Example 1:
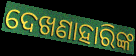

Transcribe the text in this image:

ଦେଖଣାହାରିଙ୍କ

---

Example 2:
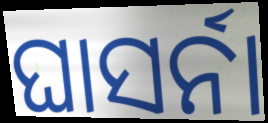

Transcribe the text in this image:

ଘାସର୍ନା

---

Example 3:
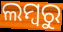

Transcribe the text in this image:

ଲମ୍ବରୁ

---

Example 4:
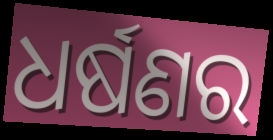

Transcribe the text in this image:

ଧର୍ଷଣର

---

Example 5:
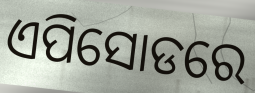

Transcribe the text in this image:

ଏପିସୋଡରେ